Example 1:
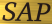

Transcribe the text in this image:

SAP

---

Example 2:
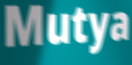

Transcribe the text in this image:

Mutya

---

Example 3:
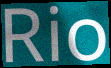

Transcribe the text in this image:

Rio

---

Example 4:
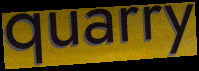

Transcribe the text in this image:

quarry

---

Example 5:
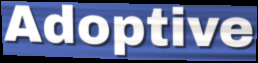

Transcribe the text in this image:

Adoptive